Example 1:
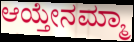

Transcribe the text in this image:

ಆಯ್ತೇನಮ್ಮಾ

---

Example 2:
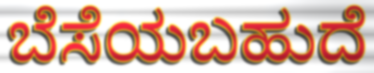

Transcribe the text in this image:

ಬೆಸೆಯಬಹುದೆ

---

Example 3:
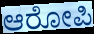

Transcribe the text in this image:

ಆರೋಪಿ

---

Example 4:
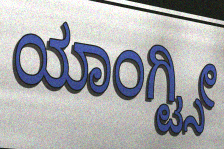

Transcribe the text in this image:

ಯಾಂಗ್ಟ್ಸೀ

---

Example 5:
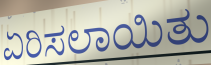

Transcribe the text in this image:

ಏರಿಸಲಾಯಿತು